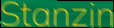
Stanzin